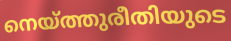
നെയ്ത്തുരീതിയുടെ